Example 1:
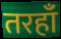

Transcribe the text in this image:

तरहाँ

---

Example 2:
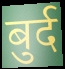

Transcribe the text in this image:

बुर्द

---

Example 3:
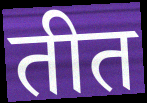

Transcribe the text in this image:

तीत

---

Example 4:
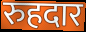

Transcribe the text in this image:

रुहदार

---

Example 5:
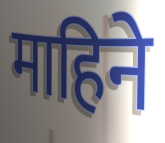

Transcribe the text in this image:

माहिने